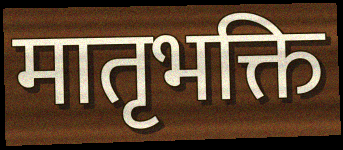
मातृभक्ति